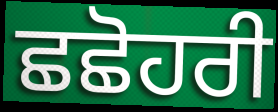
ਛਛੋਹਰੀ